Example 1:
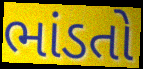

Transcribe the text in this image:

ભાંડતો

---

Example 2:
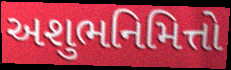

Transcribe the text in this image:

અશુભનિમિત્તો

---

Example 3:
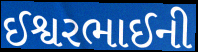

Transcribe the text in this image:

ઈશ્વરભાઈની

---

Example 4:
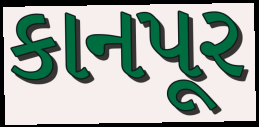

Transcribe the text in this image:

કાનપૂર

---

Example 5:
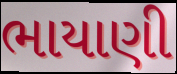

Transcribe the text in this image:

ભાયાણી